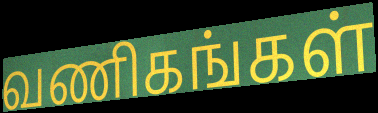
வணிகங்கள்